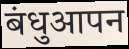
बंधुआपन